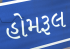
હોમરૂલ